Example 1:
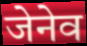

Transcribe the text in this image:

जेनेव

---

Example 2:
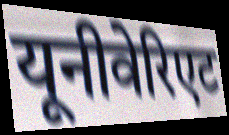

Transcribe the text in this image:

यूनीवेरिएट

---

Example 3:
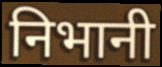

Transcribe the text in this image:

निभानी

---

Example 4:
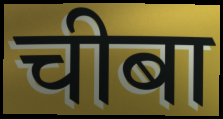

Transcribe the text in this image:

चीबा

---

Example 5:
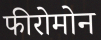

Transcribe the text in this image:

फीरोमोन